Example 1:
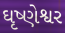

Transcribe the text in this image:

ઘૃષ્ણેશ્વર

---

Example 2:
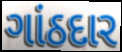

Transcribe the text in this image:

ગાંઠદાર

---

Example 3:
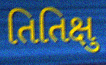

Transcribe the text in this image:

તિતિક્ષુ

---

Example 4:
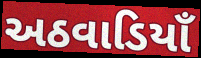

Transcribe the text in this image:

અઠવાડિયાઁ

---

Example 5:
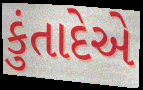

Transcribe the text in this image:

કુંતાદેએ